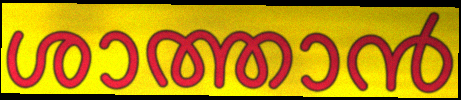
ശാത്താൻ